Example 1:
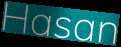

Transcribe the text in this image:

Hasan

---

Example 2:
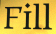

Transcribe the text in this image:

Fill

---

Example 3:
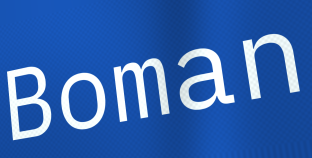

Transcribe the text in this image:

Boman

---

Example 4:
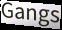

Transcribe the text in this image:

Gangs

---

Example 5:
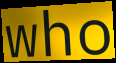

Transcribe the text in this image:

who